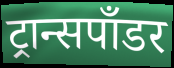
ट्रान्सपाँडर